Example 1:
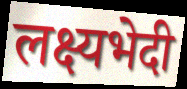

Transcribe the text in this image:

लक्ष्यभेदी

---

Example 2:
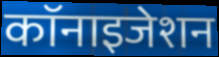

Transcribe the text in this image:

कॉनाइजेशन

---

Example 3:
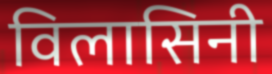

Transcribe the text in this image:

विलासिनी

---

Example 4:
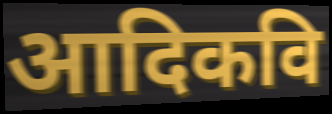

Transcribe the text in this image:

आदिकवि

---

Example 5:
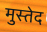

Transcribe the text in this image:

मुस्तेद